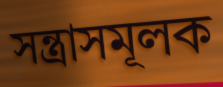
সন্ত্রাসমূলক